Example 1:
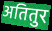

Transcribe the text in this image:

अतितुर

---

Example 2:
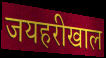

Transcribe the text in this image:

जयहरीखाल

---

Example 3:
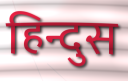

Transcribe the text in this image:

हिन्दुस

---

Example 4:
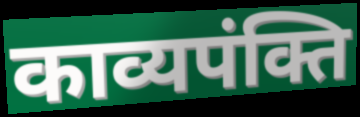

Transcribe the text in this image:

काव्यपंक्ति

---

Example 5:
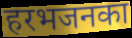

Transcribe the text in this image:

हरभजनका